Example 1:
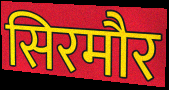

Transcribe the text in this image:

सिरमौर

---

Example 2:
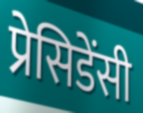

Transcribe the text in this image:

प्रेसिडेंसी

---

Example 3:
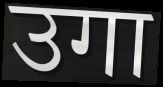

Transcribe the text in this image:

उगा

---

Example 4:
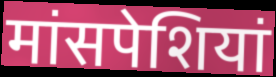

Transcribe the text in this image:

मांसपेशियां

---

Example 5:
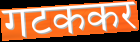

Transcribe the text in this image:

गटककर